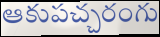
ఆకుపచ్చరంగు